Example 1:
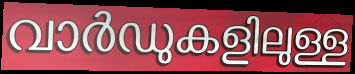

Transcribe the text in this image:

വാർഡുകളിലുള്ള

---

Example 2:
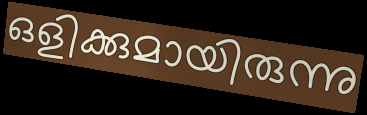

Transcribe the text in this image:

ഒളിക്കുമായിരുന്നു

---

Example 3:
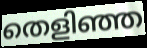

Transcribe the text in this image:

തെളിഞ്ഞ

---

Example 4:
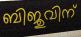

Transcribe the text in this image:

ബിജുവിന്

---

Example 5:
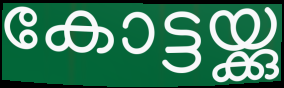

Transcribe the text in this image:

കോട്ടയ്ക്കു